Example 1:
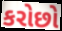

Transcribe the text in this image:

કરોછો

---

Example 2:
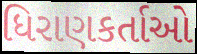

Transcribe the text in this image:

ધિરાણકર્તાઓ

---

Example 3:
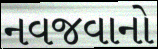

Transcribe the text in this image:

નવજવાનો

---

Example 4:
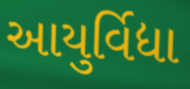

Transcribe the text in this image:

આયુર્વિદ્યા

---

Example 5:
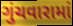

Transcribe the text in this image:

ગુંચવારામાં